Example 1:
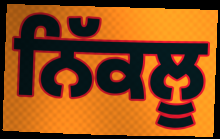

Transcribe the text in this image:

ਨਿੱਕਲੂ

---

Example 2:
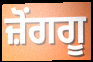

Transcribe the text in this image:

ਜ਼ੋਂਗਗੂ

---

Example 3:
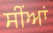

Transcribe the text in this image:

ਸੀਂਆਂ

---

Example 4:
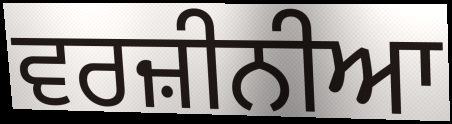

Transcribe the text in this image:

ਵਰਜ਼ੀਨੀਆ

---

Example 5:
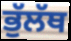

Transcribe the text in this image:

ਭੁੱਲੱਥ